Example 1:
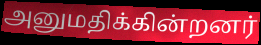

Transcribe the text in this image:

அனுமதிக்கின்றனர்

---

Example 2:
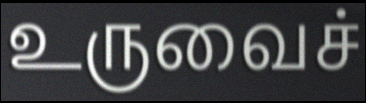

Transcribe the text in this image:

உருவைச்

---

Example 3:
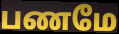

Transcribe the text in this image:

பணமே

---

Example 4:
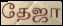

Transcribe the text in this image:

தேஜா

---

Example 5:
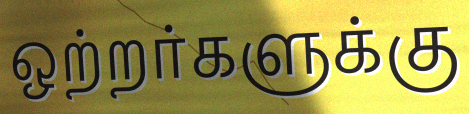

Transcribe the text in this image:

ஒற்றர்களுக்கு